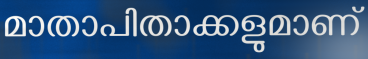
മാതാപിതാക്കളുമാണ്